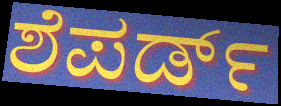
ಶೆಪರ್ಡ್